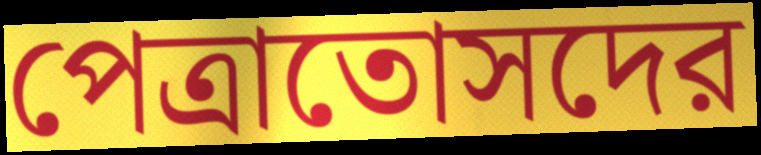
পেত্রাতোসদের